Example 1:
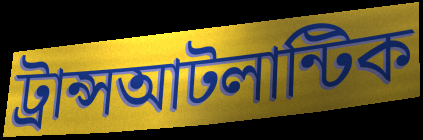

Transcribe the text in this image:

ট্রান্সআটলান্টিক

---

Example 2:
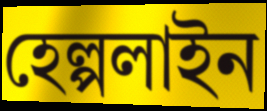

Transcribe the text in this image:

হেল্পলাইন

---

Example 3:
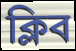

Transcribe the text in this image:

ক্লিব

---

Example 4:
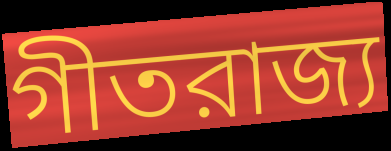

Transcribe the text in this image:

গীতরাজ্য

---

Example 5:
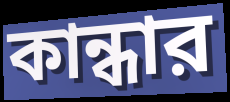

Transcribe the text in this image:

কান্ধার